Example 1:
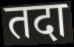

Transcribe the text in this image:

तदा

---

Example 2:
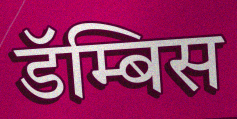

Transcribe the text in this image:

डॅम्बिस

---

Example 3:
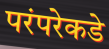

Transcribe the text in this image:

परंपरेकडे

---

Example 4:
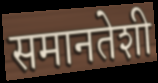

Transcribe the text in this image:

समानतेशी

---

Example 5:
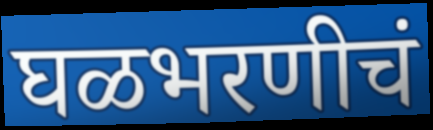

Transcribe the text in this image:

घळभरणीचं